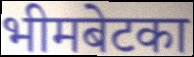
भीमबेटका